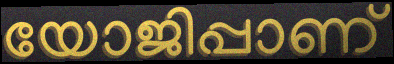
യോജിപ്പാണ്